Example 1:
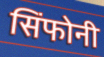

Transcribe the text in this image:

सिंफोनी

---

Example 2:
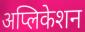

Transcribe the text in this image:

अप्लिकेशन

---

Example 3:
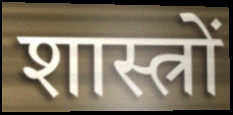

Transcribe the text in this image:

शास्त्रों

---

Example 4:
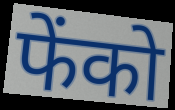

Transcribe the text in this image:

फेंको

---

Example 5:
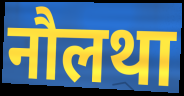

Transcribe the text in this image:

नौलथा